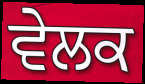
ਵੇਲਕ